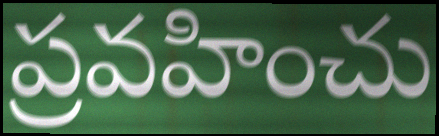
ప్రవహించు